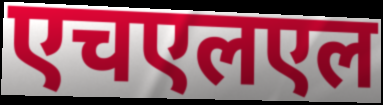
एचएलएल